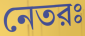
নেতরঃ